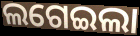
ଲଗେଇଲା